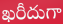
ఖరీదుగా